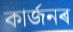
কাৰ্জনৰ